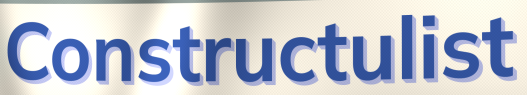
Constructulist